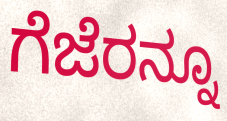
ಗೆಜೆರನ್ನೂ